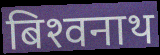
बिश्वनाथ